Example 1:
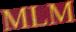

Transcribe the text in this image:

MLM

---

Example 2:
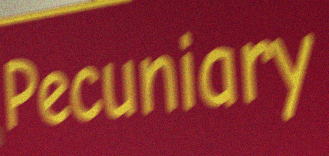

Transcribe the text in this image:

Pecuniary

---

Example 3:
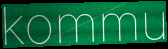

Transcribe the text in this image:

kommu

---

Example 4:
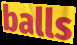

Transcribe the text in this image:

balls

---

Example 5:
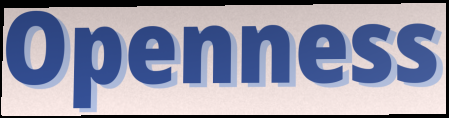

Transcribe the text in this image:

Openness